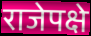
राजेपक्षे